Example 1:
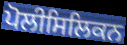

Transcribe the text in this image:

ਪੋਲੀਸਿਲਿਕਨ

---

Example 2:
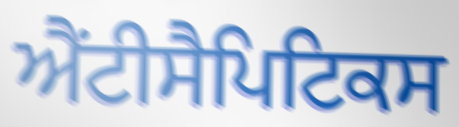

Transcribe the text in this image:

ਐਂਟੀਸੈਪਿਟਿਕਸ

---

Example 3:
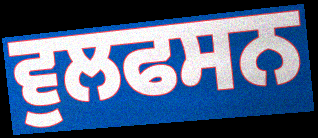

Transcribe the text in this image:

ਵੁਲਫਸਨ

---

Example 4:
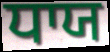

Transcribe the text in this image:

ਧਾਯ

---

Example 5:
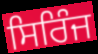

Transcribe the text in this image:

ਸਿਰਿੰਜ